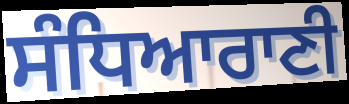
ਸੰਧਿਆਰਾਣੀ